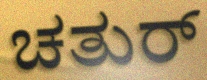
ಚತುರ್